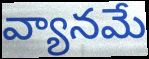
వ్యానమే